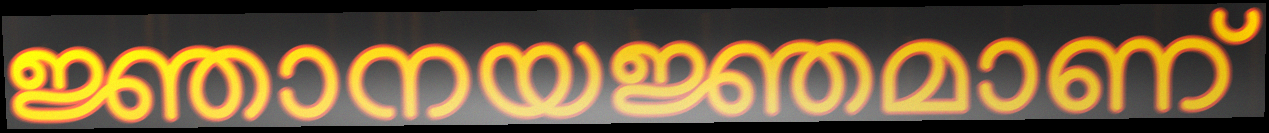
ജ്ഞാനയജ്ഞമാണ്